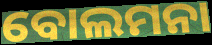
ବୋଲମନା